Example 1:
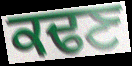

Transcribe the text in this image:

ਕਢਣ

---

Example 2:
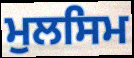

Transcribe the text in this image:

ਮੁਲਸਿਮ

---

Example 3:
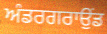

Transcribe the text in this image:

ਅੰਡਰਗਰਾਉਂਡ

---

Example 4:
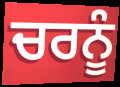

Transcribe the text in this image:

ਚਰਨੂੰ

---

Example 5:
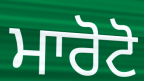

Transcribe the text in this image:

ਮਾਰੋਟੋ